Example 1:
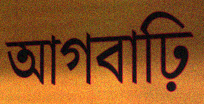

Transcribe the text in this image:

আগবাঢ়ি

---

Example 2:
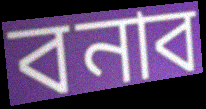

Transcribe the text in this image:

বনাব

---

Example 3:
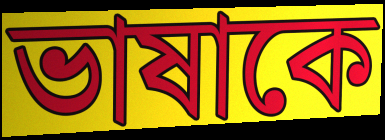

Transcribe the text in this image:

ভাষাকে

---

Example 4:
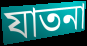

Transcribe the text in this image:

যাতনা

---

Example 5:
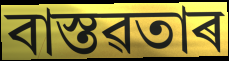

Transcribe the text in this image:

বাস্তৱতাৰ